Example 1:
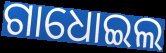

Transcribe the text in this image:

ଗାଧୋଇଲ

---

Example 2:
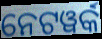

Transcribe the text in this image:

ନେଟୱର୍କ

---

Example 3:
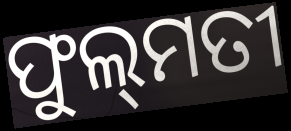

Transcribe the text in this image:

ଫୁଲ୍‍ମତୀ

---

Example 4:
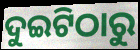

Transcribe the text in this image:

ଦୁଇଟିଠାରୁ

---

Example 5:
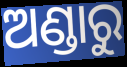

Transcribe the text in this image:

ଅଣ୍ଡାରୁ